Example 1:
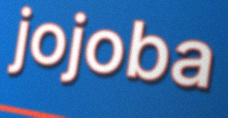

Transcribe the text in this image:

jojoba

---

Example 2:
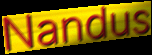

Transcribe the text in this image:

Nandus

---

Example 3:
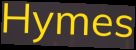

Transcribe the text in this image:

Hymes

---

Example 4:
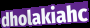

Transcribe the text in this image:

dholakiahc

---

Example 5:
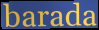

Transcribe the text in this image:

barada